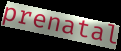
prenatal